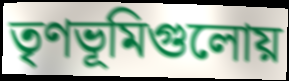
তৃণভূমিগুলোয়